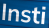
Insti